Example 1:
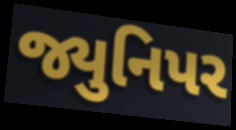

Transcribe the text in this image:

જ્યુનિપર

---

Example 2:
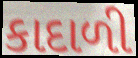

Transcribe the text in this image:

કાદાળી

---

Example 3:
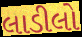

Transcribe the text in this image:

લાડીલો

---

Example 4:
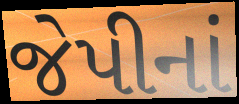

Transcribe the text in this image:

જેપીનાં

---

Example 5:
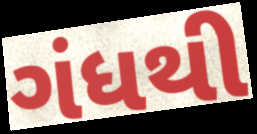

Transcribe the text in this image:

ગંધથી